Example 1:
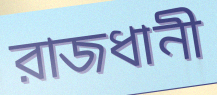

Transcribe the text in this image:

রাজধানী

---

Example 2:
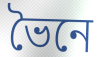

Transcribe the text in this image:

ভৈনে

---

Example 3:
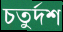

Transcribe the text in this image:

চতুর্দশ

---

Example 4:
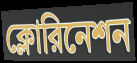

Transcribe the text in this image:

ক্লোরিনেশন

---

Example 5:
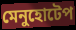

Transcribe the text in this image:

মেনুহোটেপ